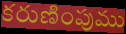
కరుణింపుము